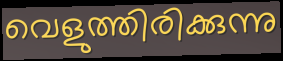
വെളുത്തിരിക്കുന്നു